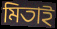
মিতাই